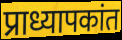
प्राध्यापकांत